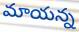
మాయన్న